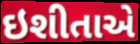
ઇશીતાએ